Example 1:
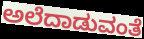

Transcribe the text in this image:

ಅಲೆದಾಡುವಂತೆ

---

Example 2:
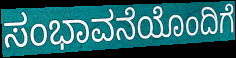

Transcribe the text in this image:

ಸಂಭಾವನೆಯೊಂದಿಗೆ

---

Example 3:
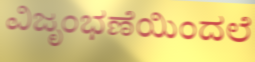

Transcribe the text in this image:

ವಿಜೃಂಭಣೆಯಿಂದಲೆ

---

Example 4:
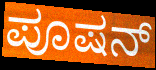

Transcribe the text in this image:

ಪೂಷನ್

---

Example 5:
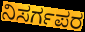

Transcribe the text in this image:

ನಿಸರ್ಗಪರ